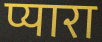
प्यारा